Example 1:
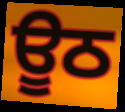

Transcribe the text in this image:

ਊਠ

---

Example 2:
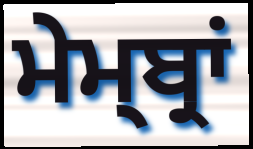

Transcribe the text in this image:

ਮੇਮ੍ਬ੍ਰਾਂ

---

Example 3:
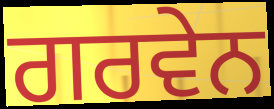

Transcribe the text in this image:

ਗਰਵੇਨ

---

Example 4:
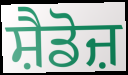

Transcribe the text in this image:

ਸ਼ੈਡੋਜ਼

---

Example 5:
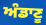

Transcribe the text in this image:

ਅੰਡਾਣੂ